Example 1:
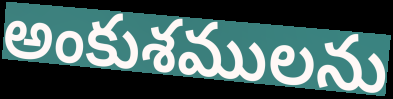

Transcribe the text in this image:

అంకుశములను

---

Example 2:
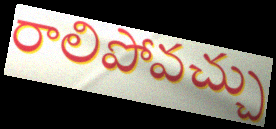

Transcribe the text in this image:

రాలిపోవచ్చు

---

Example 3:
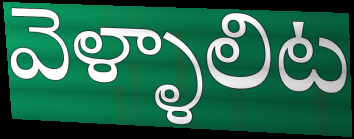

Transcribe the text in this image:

వెళ్ళాలిట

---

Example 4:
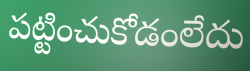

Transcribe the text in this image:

పట్టించుకోడంలేదు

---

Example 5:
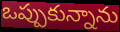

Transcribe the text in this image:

ఒప్పుకున్నాను